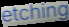
etching